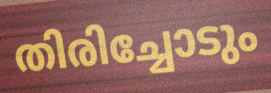
തിരിച്ചോടും